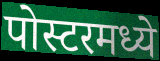
पोस्टरमध्ये